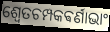
ଶ୍ଵେତଚମ୍ପକଵର୍ଣାଭାଂ